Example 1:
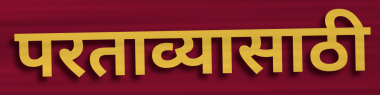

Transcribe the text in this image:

परताव्यासाठी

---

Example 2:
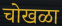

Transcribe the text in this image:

चोखळा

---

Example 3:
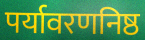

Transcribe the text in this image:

पर्यावरणनिष्ठ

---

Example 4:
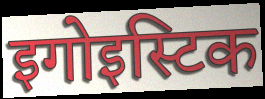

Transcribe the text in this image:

इगोइस्टिक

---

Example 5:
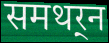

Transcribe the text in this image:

समथर्न